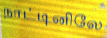
நாட்டினிலே